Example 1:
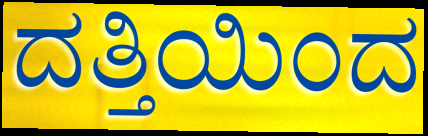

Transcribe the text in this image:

ದತ್ತಿಯಿಂದ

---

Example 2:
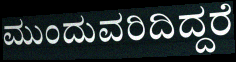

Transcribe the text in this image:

ಮುಂದುವರಿದಿದ್ದರೆ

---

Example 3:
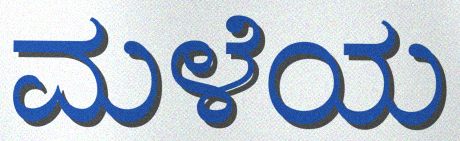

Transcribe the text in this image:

ಮಳೆಯ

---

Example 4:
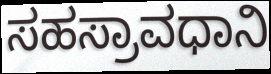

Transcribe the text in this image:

ಸಹಸ್ರಾವಧಾನಿ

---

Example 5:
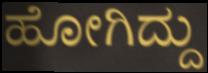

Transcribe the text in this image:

ಹೋಗಿದ್ದು